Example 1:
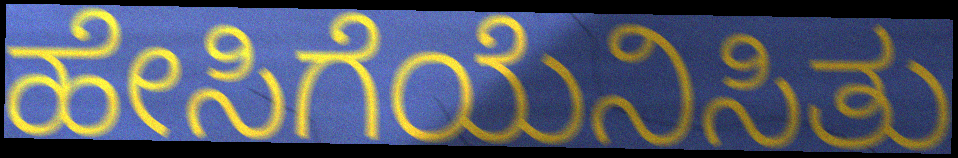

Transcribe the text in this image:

ಹೇಸಿಗೆಯೆನಿಸಿತು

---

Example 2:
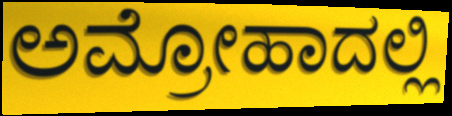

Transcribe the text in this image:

ಅಮ್ರೋಹಾದಲ್ಲಿ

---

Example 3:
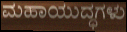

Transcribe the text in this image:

ಮಹಾಯುದ್ಧಗಳು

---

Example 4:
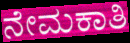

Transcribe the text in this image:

ನೇಮಕಾತಿ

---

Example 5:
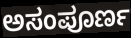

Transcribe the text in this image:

ಅಸಂಪೂರ್ಣ